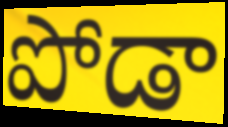
పోడా